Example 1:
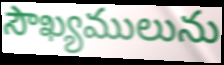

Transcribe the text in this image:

సౌఖ్యములును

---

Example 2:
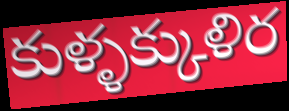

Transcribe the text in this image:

కుళ్ళక్కుళిర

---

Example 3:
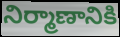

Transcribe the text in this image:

నిర్మాణానికి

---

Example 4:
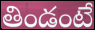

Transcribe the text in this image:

తిండంటే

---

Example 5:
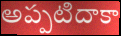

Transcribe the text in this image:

అప్పటిదాకా